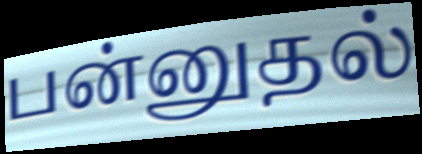
பன்னுதல்